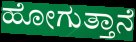
ಹೋಗುತ್ತಾನೆ